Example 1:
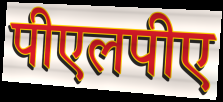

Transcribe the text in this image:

पीएलपीए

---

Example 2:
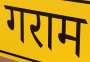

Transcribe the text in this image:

गराम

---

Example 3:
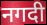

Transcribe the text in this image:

नगदी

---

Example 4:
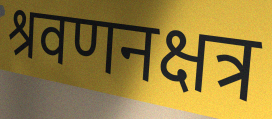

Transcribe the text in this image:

श्रवणनक्षत्र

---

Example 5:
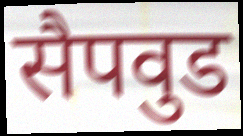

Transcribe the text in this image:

सैपवुड